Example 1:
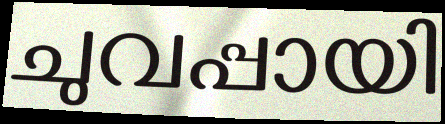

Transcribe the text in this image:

ചുവപ്പായി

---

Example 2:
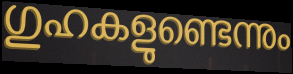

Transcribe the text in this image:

ഗുഹകളുണ്ടെന്നും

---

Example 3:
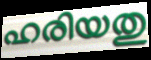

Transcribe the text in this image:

ഹരിയതു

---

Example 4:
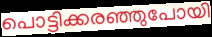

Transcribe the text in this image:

പൊട്ടിക്കരഞ്ഞുപോയി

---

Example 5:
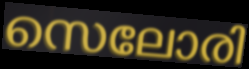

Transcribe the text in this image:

സെലോരി